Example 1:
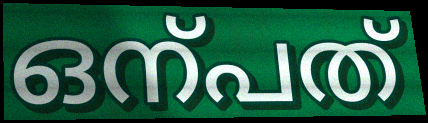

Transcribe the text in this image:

ഒന്പത്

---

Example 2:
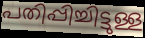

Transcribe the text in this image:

പതിപ്പിച്ചിട്ടുള്ള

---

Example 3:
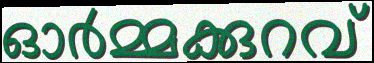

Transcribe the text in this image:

ഓർമ്മക്കുറവ്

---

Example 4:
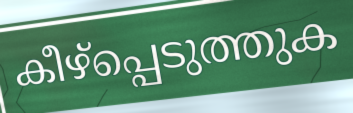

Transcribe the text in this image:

കീഴ്പ്പെടുത്തുക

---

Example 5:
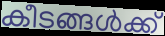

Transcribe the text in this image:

കീടങ്ങൾക്ക്